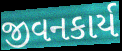
જીવનકાર્ય